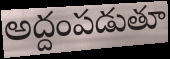
అద్దంపడుతూ